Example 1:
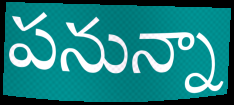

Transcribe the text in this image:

పనున్నా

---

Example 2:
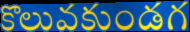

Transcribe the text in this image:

కొలువకుండగ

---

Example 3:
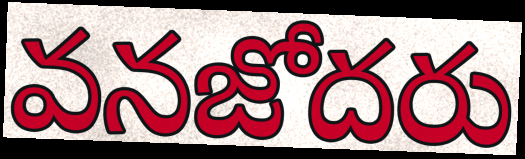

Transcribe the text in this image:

వనజోదరు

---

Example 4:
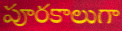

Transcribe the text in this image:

పూరకాలుగా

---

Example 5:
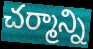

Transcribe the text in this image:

చర్మాన్ని